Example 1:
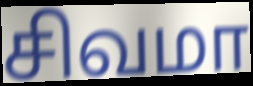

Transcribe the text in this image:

சிவமா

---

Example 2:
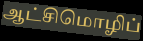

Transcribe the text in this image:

ஆட்சிமொழிப்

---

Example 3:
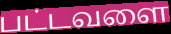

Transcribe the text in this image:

பட்டவளை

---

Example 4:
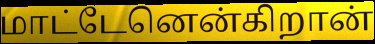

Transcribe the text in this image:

மாட்டேனென்கிறான்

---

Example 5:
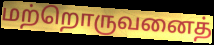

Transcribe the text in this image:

மற்றொருவனைத்